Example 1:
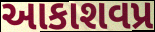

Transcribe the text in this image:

આકાશવપ્ર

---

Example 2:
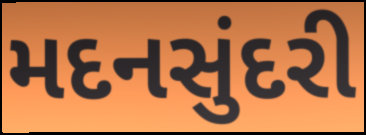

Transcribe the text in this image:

મદનસુંદરી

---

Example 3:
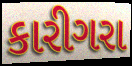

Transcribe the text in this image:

કારીગરા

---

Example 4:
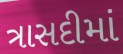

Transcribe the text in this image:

ત્રાસદીમાં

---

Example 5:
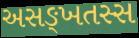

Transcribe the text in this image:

અસઙ્ખતસ્સ